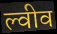
ल्वीव